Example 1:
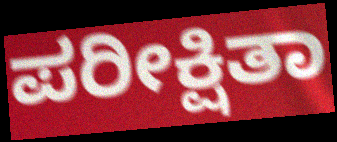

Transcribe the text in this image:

ಪರೀಕ್ಷಿತಾ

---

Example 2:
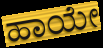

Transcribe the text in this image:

ಹಾಯೇ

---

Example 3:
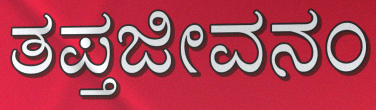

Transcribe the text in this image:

ತಪ್ತಜೀವನಂ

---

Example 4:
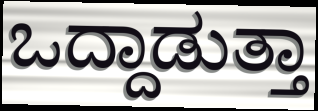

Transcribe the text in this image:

ಒದ್ದಾಡುತ್ತಾ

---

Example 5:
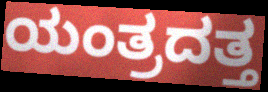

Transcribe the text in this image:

ಯಂತ್ರದತ್ತ